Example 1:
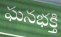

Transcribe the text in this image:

ఘనభక్తి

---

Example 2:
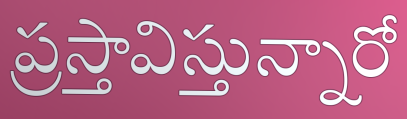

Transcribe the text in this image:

ప్రస్తావిస్తున్నారో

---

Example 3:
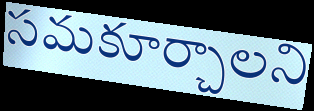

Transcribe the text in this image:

సమకూర్చాలని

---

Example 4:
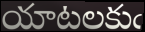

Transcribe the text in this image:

యాటలకుఁ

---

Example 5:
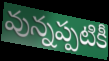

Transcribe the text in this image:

వున్నప్పటికీ